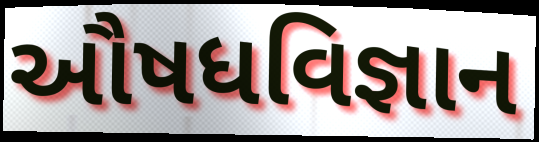
ઔષધવિજ્ઞાન